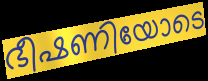
ഭീഷണിയോടെ